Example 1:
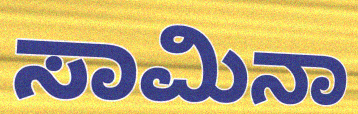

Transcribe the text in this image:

ಸಾಮಿನಾ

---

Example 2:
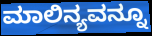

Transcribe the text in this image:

ಮಾಲಿನ್ಯವನ್ನೂ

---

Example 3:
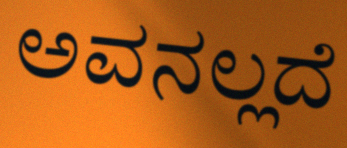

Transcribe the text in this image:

ಅವನಲ್ಲದೆ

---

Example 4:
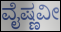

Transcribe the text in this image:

ವೈಷ್ಣವೀ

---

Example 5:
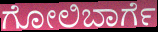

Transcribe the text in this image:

ಗೋಲಿಬಾರ್ಗೆ